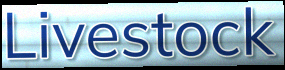
Livestock